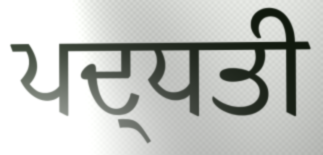
ਪਦ੍ਧਤੀ